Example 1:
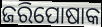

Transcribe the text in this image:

ଜରିପୋଷାକ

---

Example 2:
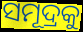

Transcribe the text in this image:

ସମୂଦ୍ରକୁ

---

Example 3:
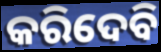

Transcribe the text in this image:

କରିଦେବି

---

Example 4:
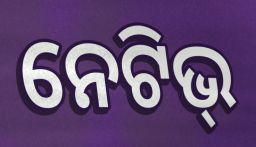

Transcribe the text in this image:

ନେଟିଭ୍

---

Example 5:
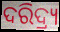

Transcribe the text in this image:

ଦରିଦ୍ର୍ୟ